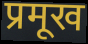
प्रमूख